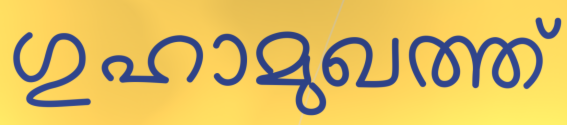
ഗുഹാമുഖത്ത്